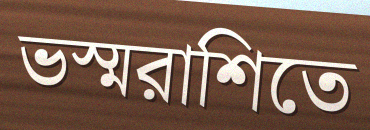
ভস্মরাশিতে